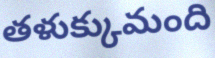
తళుక్కుమంది